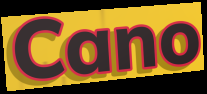
Cano